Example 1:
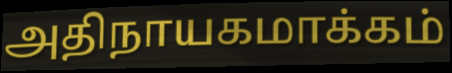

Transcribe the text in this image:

அதிநாயகமாக்கம்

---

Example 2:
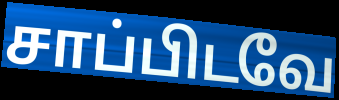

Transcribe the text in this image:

சாப்பிடவே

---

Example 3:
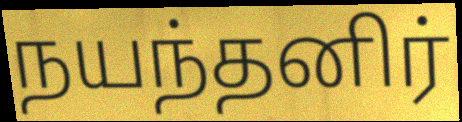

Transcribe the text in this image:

நயந்தனிர்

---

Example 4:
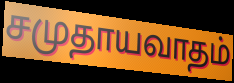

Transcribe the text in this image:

சமுதாயவாதம்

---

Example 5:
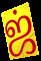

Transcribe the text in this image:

ஜ்